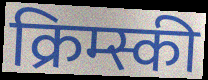
क्रिम्स्की